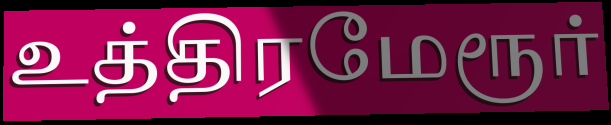
உத்திரமேரூர்